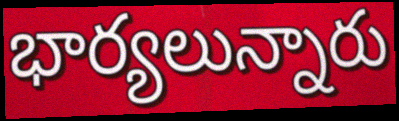
భార్యలున్నారు